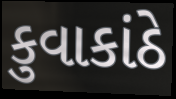
કુવાકાંઠે